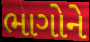
ભાગોને